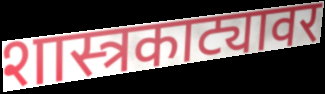
शास्त्रकाट्यावर